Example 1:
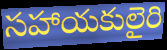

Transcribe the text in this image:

సహాయకులైరి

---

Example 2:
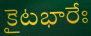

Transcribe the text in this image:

కైటభారేః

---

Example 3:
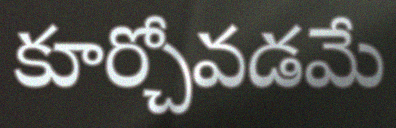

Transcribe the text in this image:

కూర్చోవడమే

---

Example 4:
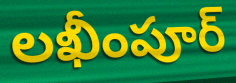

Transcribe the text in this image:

లఖీంపూర్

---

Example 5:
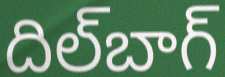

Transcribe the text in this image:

దిల్‌బాగ్